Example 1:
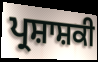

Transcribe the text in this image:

ਪ੍ਰਸ਼ਾਸ਼ਕੀ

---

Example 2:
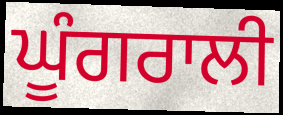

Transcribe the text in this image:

ਘੂੰਗਰਾਲੀ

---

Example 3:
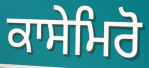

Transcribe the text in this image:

ਕਾਸੇਮਿਰੋ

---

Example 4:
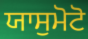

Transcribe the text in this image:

ਯਾਸੁਮੋਟੋ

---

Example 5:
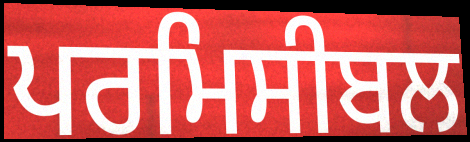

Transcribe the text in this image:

ਪਰਮਿਸੀਬਲ